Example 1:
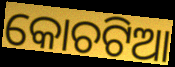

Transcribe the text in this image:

କୋଚଟିଆ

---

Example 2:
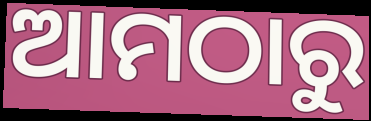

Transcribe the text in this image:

ଆମଠାରୁ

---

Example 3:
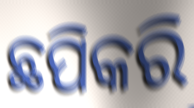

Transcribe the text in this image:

ଛପିକରି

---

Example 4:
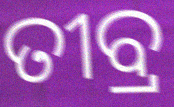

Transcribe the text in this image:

ତୀବ୍ର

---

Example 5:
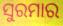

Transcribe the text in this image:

ସୁରମାର